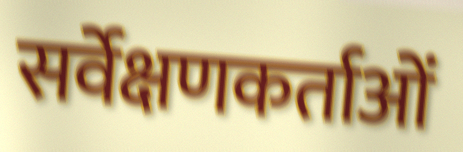
सर्वेक्षणकर्ताओं